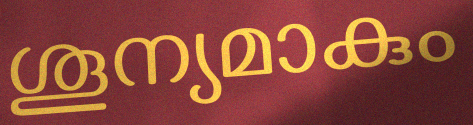
ശൂന്യമാകും